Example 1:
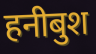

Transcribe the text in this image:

हनीबुश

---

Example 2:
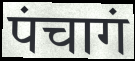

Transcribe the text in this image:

पंचागं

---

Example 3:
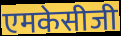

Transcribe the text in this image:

एमकेसीजी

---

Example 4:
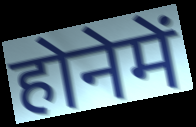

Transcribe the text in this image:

होनेमें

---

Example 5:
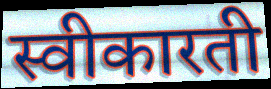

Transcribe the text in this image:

स्वीकारती